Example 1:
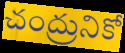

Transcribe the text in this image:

చంద్రునికో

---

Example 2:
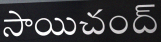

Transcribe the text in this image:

సాయిచంద్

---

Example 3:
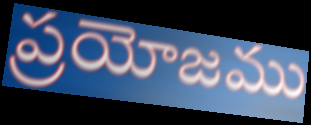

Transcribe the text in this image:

ప్రయోజము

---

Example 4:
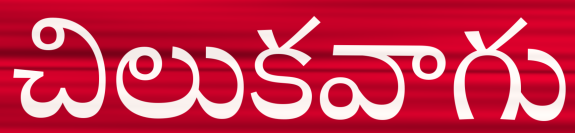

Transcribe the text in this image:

చిలుకవాగు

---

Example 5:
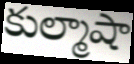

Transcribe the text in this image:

కుల్మాషా